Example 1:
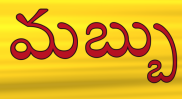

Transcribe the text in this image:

మబ్బు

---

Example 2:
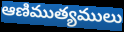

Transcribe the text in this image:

ఆణిముత్యములు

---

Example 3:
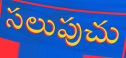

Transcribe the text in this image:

సలుపుచు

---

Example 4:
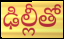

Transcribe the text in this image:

ఢిల్లీతో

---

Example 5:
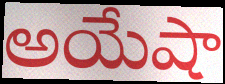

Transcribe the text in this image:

అయేషా